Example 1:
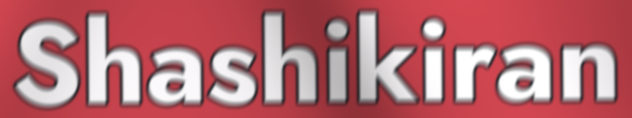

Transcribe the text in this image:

Shashikiran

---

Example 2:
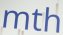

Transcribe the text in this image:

mth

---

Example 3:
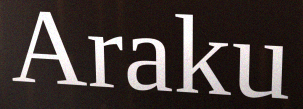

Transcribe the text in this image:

Araku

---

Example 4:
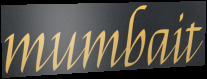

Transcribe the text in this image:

mumbait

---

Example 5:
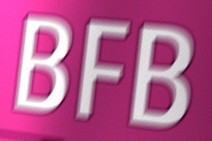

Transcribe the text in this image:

BFB